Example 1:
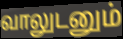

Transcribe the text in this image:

வாலுடனும்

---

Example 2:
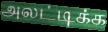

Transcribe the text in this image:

அலட்டிக்க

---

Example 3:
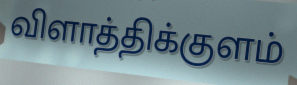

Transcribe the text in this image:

விளாத்திக்குளம்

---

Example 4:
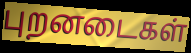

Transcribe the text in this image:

புறனடைகள்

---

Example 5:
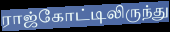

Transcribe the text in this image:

ராஜ்கோட்டிலிருந்து